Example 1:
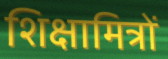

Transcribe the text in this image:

शिक्षामित्रों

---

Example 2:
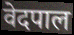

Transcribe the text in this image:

वेदपाल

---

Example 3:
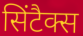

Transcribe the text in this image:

सिंटैक्स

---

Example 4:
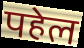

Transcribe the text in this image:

पहेल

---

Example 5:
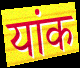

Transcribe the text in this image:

यांक